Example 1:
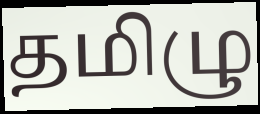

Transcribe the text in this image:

தமிழு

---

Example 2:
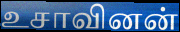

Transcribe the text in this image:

உசாவினன்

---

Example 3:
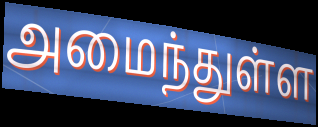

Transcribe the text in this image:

அமைந்துள்ள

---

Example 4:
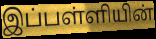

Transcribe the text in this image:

இப்பள்ளியின்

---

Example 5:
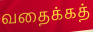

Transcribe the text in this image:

வதைக்கத்